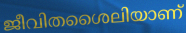
ജീവിതശൈലിയാണ്